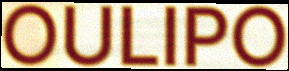
OULIPO